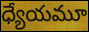
ధ్యేయమూ